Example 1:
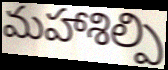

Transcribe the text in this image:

మహాశిల్పి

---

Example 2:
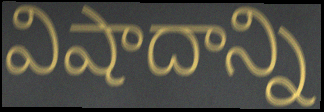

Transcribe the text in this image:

విషాదాన్ని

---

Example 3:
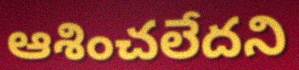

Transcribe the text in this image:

ఆశించలేదని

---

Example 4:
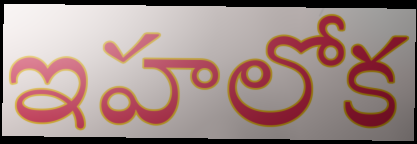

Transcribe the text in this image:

ఇహలోక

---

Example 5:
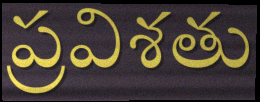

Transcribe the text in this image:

ప్రవిశతు